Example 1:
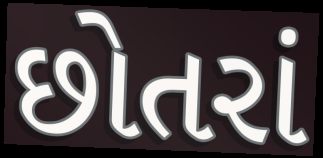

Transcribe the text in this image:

છોતરાં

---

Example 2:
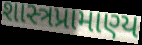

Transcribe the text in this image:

શાસ્ત્રપ્રામાણ્ય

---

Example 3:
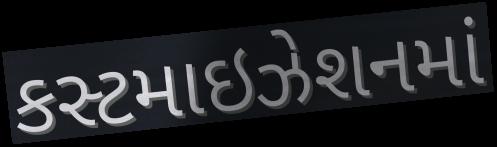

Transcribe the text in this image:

કસ્ટમાઇઝેશનમાં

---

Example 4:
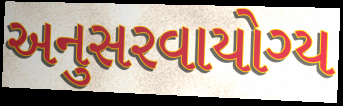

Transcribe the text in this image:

અનુસરવાયોગ્ય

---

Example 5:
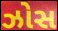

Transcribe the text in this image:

ઝોસ